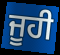
ਜੂਹੀ